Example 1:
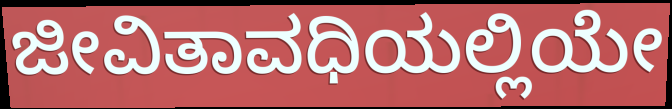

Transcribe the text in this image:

ಜೀವಿತಾವಧಿಯಲ್ಲಿಯೇ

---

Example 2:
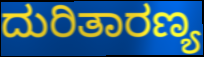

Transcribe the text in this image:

ದುರಿತಾರಣ್ಯ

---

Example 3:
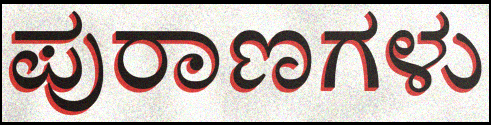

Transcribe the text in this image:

ಪುರಾಣಗಳು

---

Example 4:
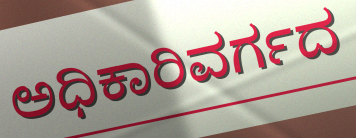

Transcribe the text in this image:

ಅಧಿಕಾರಿವರ್ಗದ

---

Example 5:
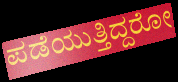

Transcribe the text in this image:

ಪಡೆಯುತ್ತಿದ್ದರೋ